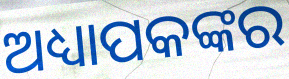
ଅଧ୍ୟାପକଙ୍କର